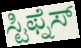
ಸ್ಟಿಫ್ನೆಸ್